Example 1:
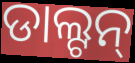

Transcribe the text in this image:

ଡାଲ୍ଟନ୍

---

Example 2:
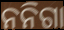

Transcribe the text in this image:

ନନିଗା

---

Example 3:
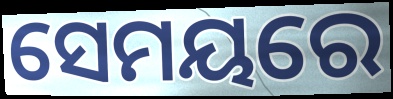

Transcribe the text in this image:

ସେମୟରେ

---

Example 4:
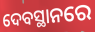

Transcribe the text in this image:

ଦେବସ୍ଥାନରେ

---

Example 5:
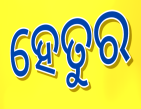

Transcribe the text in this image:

ହେତୁର